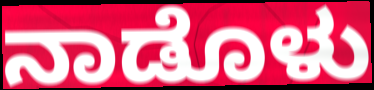
ನಾಡೊಳು